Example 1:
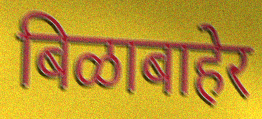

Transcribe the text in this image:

बिळाबाहेर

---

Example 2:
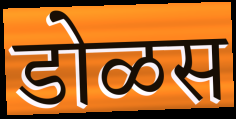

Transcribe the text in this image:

डोळस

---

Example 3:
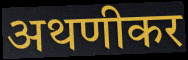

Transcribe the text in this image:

अथणीकर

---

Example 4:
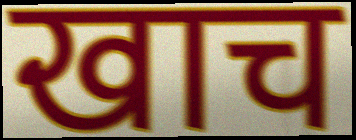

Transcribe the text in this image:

खाच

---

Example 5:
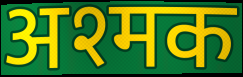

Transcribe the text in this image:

अश्मक